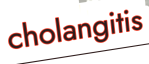
cholangitis